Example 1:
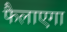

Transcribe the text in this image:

फैलाएगा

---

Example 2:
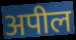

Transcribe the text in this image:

अपील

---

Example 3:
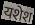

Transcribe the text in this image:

यशेश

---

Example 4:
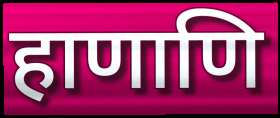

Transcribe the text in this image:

हाणाणि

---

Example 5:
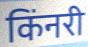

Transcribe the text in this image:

किंनरी